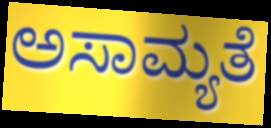
ಅಸಾಮ್ಯತೆ